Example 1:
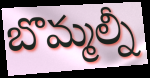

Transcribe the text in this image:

బొమ్మల్నీ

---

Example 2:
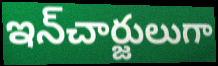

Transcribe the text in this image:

ఇన్‌చార్జులుగా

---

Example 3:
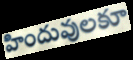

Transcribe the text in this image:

హిందువులకూ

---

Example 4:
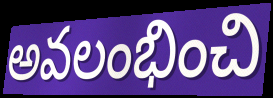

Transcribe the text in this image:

అవలంభించి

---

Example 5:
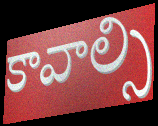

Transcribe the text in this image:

కావాల్సి